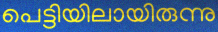
പെട്ടിയിലായിരുന്നു